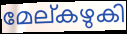
മേല്കഴുകി